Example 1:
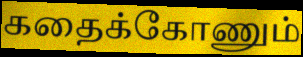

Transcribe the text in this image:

கதைக்கோணும்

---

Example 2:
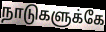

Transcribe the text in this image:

நாடுகளுக்கே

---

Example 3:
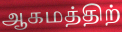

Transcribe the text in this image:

ஆகமத்திற்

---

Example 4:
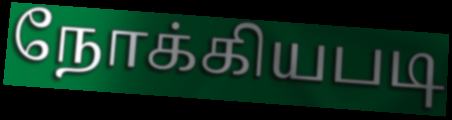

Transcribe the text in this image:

நோக்கியபடி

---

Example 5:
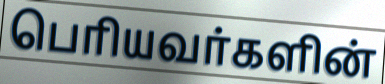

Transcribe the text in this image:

பெரியவர்களின்